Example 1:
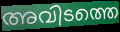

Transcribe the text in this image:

അവിടത്തെ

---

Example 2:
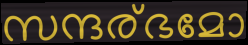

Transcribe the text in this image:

സന്ദര്ഭമോ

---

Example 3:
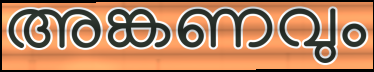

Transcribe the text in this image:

അങ്കണവും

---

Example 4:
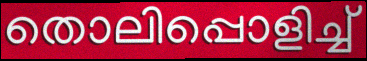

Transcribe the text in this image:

തൊലിപ്പൊളിച്ച്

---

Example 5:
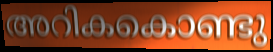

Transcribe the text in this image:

അറികകൊണ്ടു